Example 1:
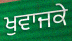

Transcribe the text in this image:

ਖੁਵਾਜਕੇ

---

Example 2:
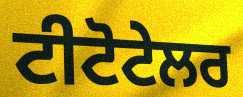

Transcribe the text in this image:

ਟੀਟੋਟੇਲਰ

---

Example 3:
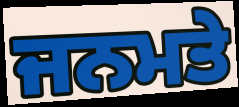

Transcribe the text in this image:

ਜਨਮਤੇ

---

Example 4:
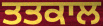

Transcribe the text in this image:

ਤਤਕਾਲ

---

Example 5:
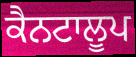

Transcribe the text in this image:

ਕੈਨਟਾਲੂਪ